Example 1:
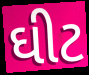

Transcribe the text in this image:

ઘીટ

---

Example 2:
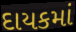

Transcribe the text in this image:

દાયકમાં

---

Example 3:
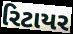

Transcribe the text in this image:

રિટાયર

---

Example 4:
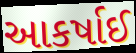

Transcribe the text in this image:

આકર્ષાઈ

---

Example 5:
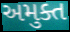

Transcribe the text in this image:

અમુક્ત